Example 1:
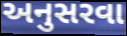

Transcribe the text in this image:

અનુસરવા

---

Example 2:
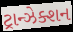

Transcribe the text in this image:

ટ્રાન્ઝેક્શન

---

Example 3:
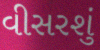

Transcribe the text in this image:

વીસરશું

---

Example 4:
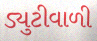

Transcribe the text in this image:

ડ્યુટીવાળી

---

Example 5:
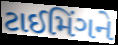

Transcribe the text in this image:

ટાઈમિંગને